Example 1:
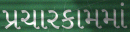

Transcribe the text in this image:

પ્રચારકામમાં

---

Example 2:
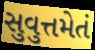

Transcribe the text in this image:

સુવુત્તમેતં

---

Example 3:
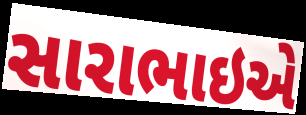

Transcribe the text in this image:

સારાભાઇએ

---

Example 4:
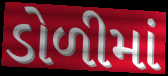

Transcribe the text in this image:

ડોળીમાં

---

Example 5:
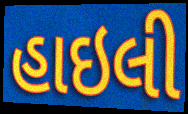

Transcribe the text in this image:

હાઇલી